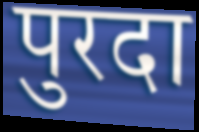
पुरदा